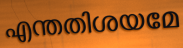
എന്തതിശയമേ